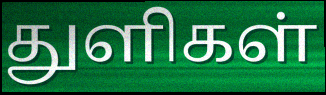
துளிகள்